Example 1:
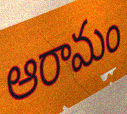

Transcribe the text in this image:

ఆరామం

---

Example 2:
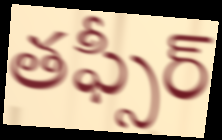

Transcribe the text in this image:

తఫ్సీర్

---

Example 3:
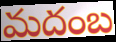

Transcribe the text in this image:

మదంబ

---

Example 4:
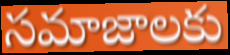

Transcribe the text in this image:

సమాజాలకు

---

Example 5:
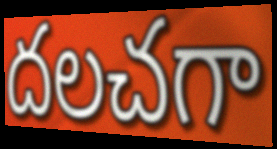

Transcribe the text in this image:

దలచగా